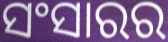
ସଂସାରର